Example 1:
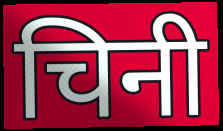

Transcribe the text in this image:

चिनी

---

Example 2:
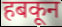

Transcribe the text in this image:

हबकून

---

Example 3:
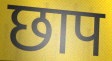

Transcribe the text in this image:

छाप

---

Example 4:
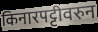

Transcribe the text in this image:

किनारपट्टीवरुन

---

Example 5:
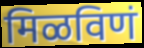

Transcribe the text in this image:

मिळविणं